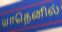
யாதெனில்